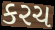
કરચ